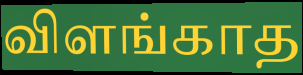
விளங்காத